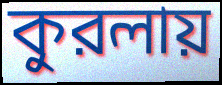
কুরলায়